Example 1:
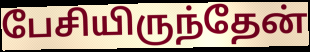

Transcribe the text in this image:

பேசியிருந்தேன்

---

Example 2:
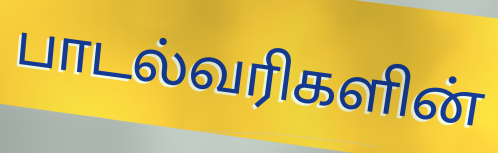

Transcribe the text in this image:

பாடல்வரிகளின்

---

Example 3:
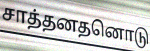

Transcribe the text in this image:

சாத்தனதனொடு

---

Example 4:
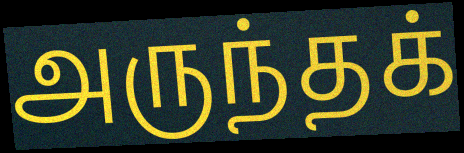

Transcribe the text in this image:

அருந்தக்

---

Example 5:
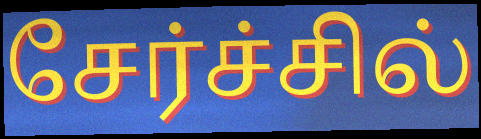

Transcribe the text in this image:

சேர்ச்சில்